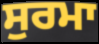
ਸੁਰਮਾ